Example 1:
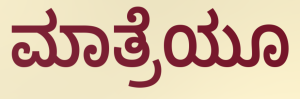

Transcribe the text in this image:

ಮಾತ್ರೆಯೂ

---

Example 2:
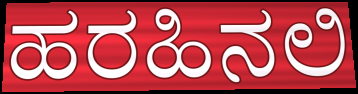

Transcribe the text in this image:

ಹರಹಿನಲಿ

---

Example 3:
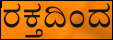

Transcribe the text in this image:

ರಕ್ತದಿಂದ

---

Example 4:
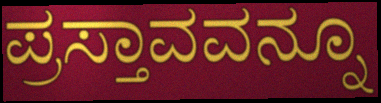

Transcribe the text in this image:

ಪ್ರಸ್ತಾವವನ್ನೂ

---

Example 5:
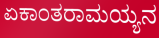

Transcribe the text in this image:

ಏಕಾಂತರಾಮಯ್ಯನ